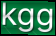
kgg